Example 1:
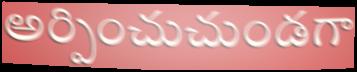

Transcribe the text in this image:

అర్పించుచుండగా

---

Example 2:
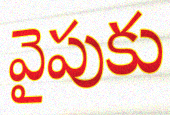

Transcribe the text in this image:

వైపుకు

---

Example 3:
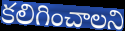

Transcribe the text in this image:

కలిగించాలని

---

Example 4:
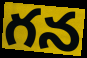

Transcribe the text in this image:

గన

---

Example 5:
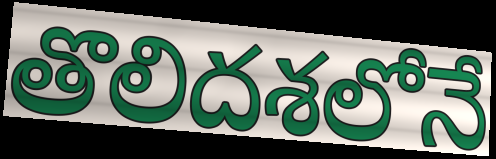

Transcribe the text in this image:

తొలిదశలోనే